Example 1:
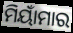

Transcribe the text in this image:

ମିୟାଁମାର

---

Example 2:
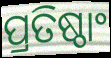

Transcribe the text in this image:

ପ୍ରତିଷ୍ଠାଂ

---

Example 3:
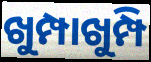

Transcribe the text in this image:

ଖୁମ୍ପାଖୁମ୍ପି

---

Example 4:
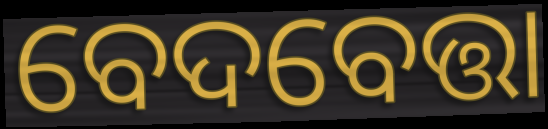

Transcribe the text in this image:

ବେଦବେତ୍ତା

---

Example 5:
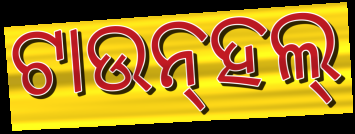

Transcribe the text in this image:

ଟାଉନ୍‌ହଲ୍